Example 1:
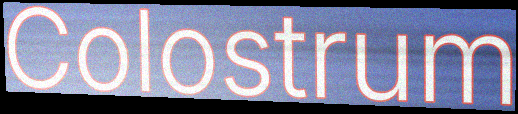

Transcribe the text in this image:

Colostrum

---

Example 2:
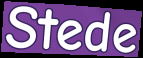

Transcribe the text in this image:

Stede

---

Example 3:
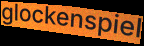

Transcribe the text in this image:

glockenspiel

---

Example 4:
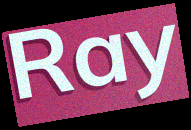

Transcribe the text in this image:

Ray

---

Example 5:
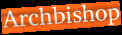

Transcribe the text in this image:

Archbishop